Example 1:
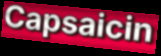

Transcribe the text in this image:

Capsaicin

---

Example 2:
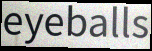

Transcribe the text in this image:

eyeballs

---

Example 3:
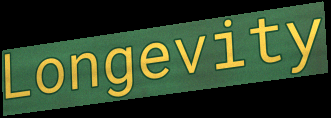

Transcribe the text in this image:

Longevity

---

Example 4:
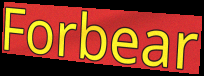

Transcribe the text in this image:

Forbear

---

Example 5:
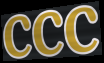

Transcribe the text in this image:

ccc